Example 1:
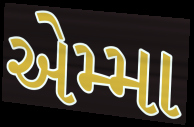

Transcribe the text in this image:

એમ્મા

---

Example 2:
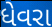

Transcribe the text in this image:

ધેવરા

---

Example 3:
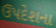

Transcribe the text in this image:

ઉપદેશના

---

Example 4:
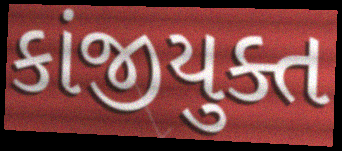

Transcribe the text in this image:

કાંજીયુક્ત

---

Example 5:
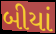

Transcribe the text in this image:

બીયાં